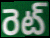
రెట్